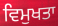
ਵਿਮੁਖਤਾ